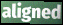
aligned